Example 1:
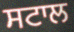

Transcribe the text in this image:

ਸਟਾਲ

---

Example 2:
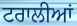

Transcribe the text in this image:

ਟਰਾਲੀਆਂ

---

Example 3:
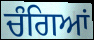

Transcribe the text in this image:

ਚੰਗਿਆਂ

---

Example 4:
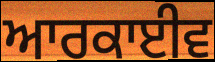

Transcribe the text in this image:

ਆਰਕਾਈਵ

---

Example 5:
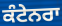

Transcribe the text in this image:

ਕੰਟੇਨਰਾ